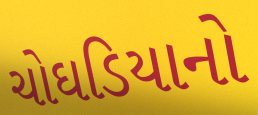
ચોઘડિયાનો